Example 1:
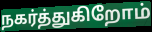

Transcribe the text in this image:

நகர்த்துகிறோம்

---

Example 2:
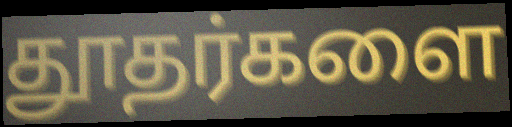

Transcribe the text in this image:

தூதர்களை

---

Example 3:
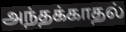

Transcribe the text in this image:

அந்தக்காதல்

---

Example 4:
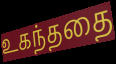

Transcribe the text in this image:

உகந்ததை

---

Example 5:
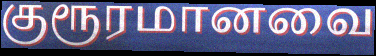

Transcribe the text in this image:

குரூரமானவை